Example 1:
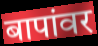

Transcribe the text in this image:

बापांवर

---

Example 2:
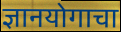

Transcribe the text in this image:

ज्ञानयोगाचा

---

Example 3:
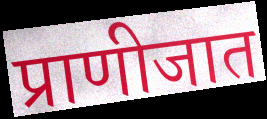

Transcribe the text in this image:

प्राणीजात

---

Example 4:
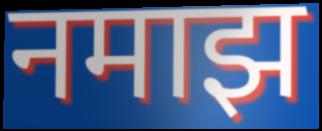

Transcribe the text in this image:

नमाझ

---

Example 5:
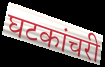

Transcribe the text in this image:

घटकांचरी